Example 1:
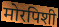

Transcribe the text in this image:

मोरपिशी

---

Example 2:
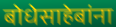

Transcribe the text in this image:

बोधेसाहेबांना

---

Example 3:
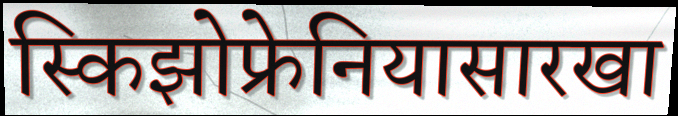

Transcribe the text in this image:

स्किझोफ्रेनियासारखा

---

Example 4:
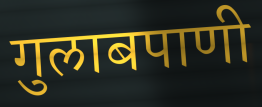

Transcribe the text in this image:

गुलाबपाणी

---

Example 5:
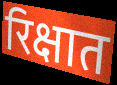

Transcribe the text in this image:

रिक्षात